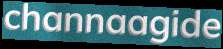
channaagide